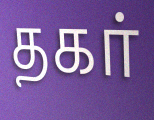
தகர்